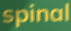
spinal